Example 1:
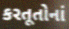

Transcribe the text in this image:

કરતૂતોનાં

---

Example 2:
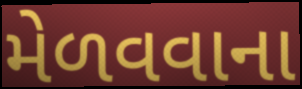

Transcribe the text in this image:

મેળવવાના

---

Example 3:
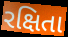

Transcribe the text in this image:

રક્ષિતા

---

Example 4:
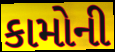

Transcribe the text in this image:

કામોની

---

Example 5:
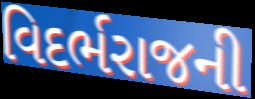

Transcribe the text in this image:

વિદર્ભરાજની